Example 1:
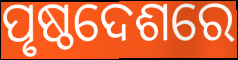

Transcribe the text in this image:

ପୃଷ୍ଠଦେଶରେ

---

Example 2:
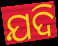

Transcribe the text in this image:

ଯଦି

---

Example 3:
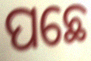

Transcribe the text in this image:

ପଛେ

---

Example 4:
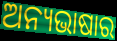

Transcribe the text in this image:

ଅନ୍ୟଭାଷାର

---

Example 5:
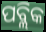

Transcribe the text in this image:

ପବ୍ଲିକ